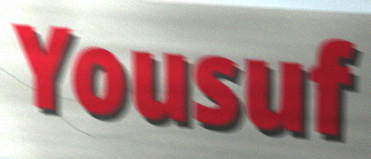
Yousuf